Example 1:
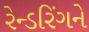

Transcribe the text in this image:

રેન્ડરિંગને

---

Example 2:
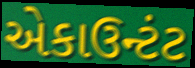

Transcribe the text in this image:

એકાઉન્ટંટ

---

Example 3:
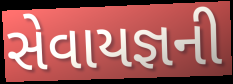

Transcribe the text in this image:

સેવાયજ્ઞની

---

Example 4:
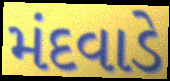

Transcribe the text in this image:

મંદવાડે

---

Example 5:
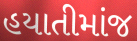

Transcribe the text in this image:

હયાતીમાંજ